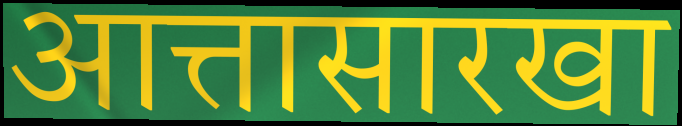
आत्तासारखा